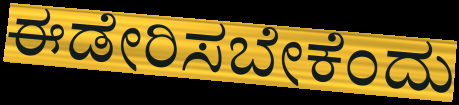
ಈಡೇರಿಸಬೇಕೆಂದು